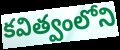
కవిత్వంలోని